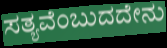
ಸತ್ಯವೆಂಬುದದೇನು